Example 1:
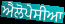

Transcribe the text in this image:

ਐਲੋਪੇਸੀਆ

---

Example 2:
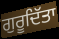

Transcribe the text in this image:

ਗੁਰੂਦਿੱਤਾ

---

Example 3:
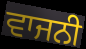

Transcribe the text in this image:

ਵਾਜਨੀ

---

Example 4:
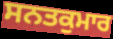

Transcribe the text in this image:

ਸਨਤਕੁਮਾਰ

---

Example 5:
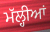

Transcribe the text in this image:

ਮੱਲ੍ਹੀਆਂ